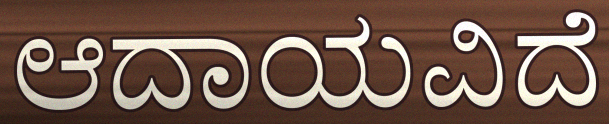
ಆದಾಯವಿದೆ